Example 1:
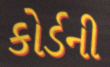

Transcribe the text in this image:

કોર્ડની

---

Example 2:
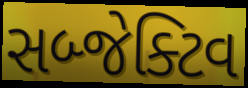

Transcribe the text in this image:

સબ્જેક્ટિવ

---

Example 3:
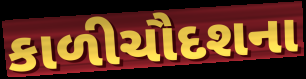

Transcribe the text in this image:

કાળીચૌદશના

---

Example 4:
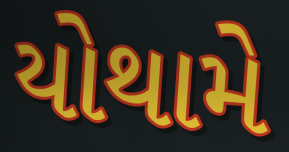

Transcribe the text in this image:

યોથામે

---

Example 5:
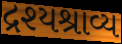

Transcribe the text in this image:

દ્રશ્યશ્રાવ્ય